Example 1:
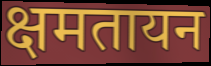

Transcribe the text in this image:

क्षमतायन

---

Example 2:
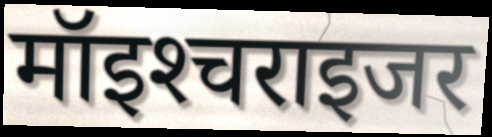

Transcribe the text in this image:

मॉइश्‍चराइजर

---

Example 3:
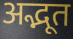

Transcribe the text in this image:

अद्भूत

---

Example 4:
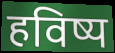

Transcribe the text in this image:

हविष्‍य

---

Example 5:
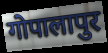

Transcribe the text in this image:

गोपालापुर